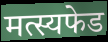
मत्स्यफेड